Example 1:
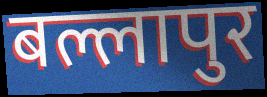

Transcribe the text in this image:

बल्लापुर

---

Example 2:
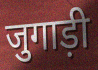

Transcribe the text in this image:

जुगाड़ी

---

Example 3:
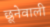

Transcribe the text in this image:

छूनेवाली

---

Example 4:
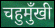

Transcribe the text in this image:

चहुमुँखी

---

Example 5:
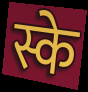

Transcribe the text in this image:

स्के